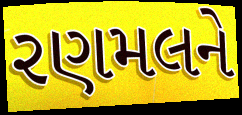
રણમલને